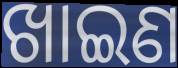
ଖାଇଣ